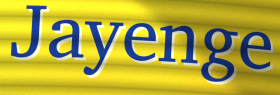
Jayenge